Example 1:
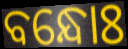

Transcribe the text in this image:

ବନ୍ଧୋଃ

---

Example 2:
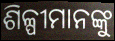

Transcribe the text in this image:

ଶିଳ୍ପୀମାନଙ୍କୁ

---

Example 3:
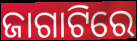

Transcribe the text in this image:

ଜାଗାଟିରେ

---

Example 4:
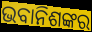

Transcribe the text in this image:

ଭବାନିଶଙ୍କର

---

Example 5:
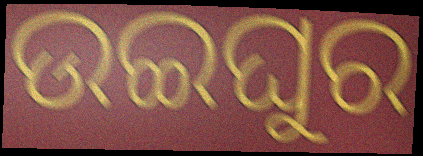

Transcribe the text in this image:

ଉଇଘୁର